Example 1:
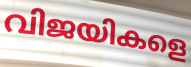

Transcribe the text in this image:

വിജയികളെ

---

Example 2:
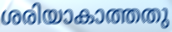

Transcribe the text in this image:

ശരിയാകാത്തതു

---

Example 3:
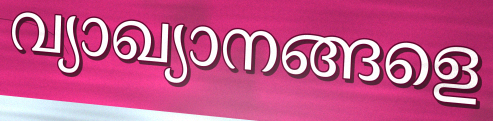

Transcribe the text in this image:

വ്യാഖ്യാനങ്ങളെ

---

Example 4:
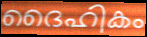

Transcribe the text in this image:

ദൈഹികം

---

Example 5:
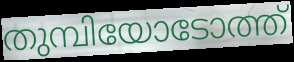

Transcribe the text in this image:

തുമ്പിയോടോത്ത്